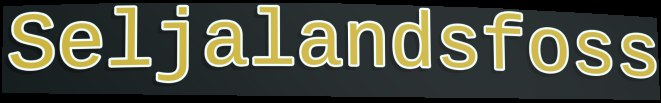
Seljalandsfoss